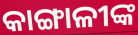
କାଙ୍ଗାଳୀଙ୍କ